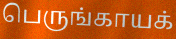
பெருங்காயக்